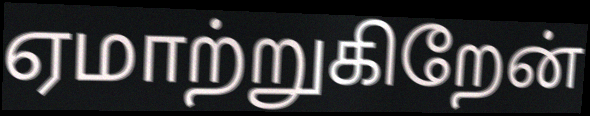
ஏமாற்றுகிறேன்